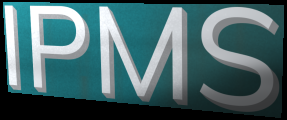
IPMS